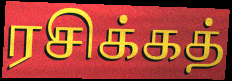
ரசிக்கத்